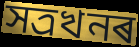
সত্ৰখনৰ